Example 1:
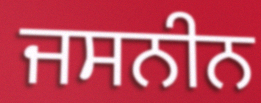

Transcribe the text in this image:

ਜਸਨੀਨ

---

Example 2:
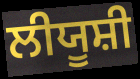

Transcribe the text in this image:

ਲੀਯੂਸ਼ੀ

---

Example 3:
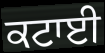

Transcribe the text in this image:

ਕਟਾਈ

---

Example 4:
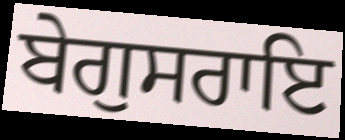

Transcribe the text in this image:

ਬੇਗੁਸਰਾਇ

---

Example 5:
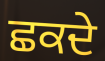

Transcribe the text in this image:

ਛਕਦੇ